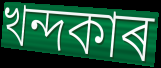
খন্দকাৰ